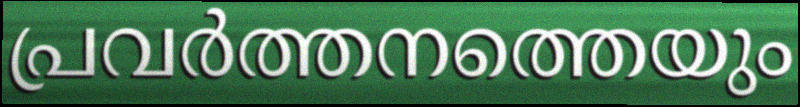
പ്രവർത്തനത്തെയും